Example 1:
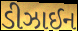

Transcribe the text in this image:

ડીઝાઈન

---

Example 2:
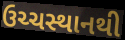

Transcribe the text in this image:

ઉચ્ચસ્થાનથી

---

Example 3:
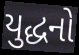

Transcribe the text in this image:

યુદ્ધનો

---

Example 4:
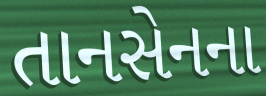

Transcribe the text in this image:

તાનસેનના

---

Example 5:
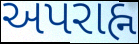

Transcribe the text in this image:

અપરાહ્ન